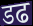
डढ